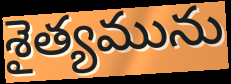
శైత్యమును